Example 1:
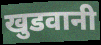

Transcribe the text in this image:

खुडवानी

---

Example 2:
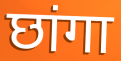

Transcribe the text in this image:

छांगा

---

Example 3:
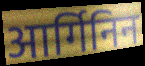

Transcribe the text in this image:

आर्गिनिन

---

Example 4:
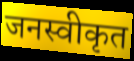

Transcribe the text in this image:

जनस्वीकृत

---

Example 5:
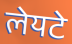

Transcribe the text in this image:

लेयटे